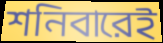
শনিবারেই